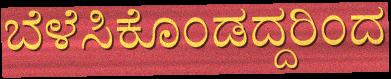
ಬೆಳೆಸಿಕೊಂಡದ್ದರಿಂದ